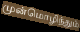
முன்மொழிந்தும்